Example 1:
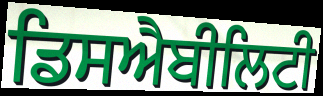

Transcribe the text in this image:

ਡਿਸਐਬੀਲਿਟੀ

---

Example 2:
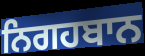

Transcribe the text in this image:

ਨਿਗਹਬਾਨ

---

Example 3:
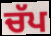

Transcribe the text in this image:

ਚੱਪ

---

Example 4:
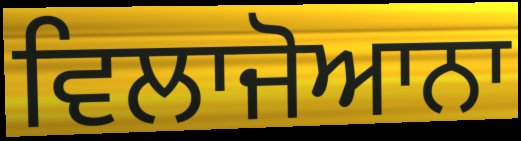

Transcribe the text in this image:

ਵਿਲਾਜੋਆਨਾ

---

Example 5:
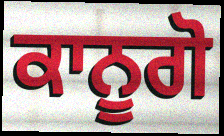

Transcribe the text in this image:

ਕਾਨੂਗੋ